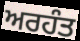
ਅਰਹੰਤ